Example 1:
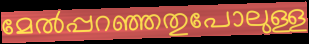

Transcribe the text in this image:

മേൽപ്പറഞ്ഞതുപോലുള്ള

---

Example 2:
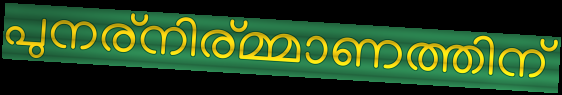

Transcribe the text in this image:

പുനര്നിര്മ്മാണത്തിന്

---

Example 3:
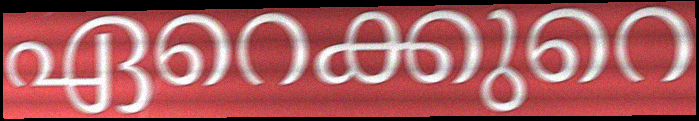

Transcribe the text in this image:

ഏറെക്കുറെ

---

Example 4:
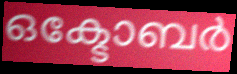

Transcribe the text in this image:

ഒക്ടോബർ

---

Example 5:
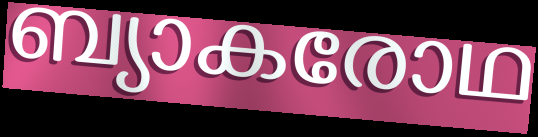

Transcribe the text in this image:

ബ്യാകരോഥ